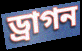
ড্রাগন